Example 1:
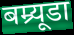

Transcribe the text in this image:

बम्र्यूडा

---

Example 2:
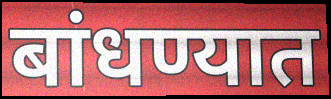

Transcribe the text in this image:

बांधण्यात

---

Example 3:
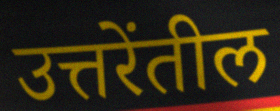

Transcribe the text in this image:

उत्तरेंतील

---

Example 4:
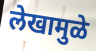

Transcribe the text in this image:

लेखामुळे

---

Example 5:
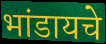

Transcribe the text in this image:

भांडायचे